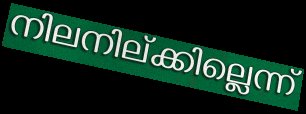
നിലനില്ക്കില്ലെന്ന്